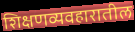
शिक्षणव्यवहारातील